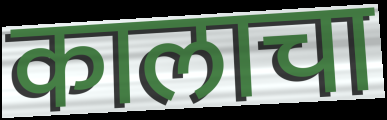
कालाचा